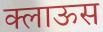
क्लाऊस